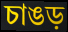
চাঙড়